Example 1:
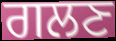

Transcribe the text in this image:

ਗਲਣ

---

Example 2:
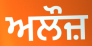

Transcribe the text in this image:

ਅਲੌਜ਼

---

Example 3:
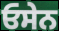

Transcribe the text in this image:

ਓਸੇਨ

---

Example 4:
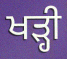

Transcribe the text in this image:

ਖੜ੍ਹੀ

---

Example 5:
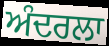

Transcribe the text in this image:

ਅੰਦਰਲਾ